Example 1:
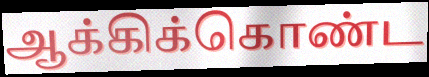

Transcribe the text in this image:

ஆக்கிக்கொண்ட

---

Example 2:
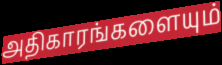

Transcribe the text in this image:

அதிகாரங்களையும்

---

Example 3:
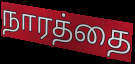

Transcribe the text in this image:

நாரத்தை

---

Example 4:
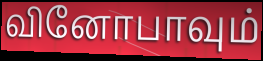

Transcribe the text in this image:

வினோபாவும்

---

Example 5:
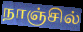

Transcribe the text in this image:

நாஞ்சில்